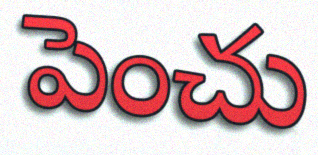
పెంచు